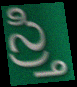
స్ర్తి